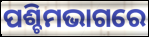
ପଶ୍ଚିମଭାଗରେ